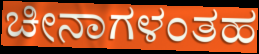
ಚೀನಾಗಳಂತಹ